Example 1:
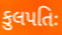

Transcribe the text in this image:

કુલપતિઃ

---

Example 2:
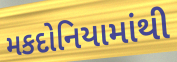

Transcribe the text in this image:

મકદોનિયામાંથી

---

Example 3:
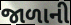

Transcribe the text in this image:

જાળાની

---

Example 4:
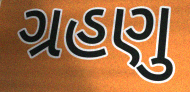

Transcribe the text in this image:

ગ્રહણુ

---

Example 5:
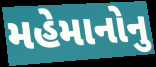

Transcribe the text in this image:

મહેમાનોનુ